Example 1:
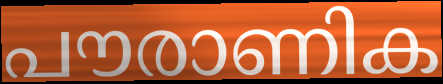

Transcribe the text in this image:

പൗരാണിക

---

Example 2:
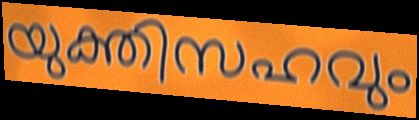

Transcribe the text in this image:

യുക്തിസഹവും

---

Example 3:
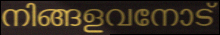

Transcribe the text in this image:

നിങ്ങളവനോട്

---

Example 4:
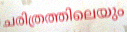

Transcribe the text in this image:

ചരിത്രത്തിലെയും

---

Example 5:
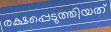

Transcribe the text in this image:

രക്ഷപ്പെടുത്തിയത്